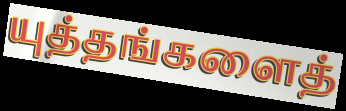
யுத்தங்களைத்